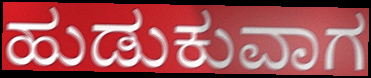
ಹುಡುಕುವಾಗ